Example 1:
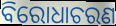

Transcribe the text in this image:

ବିରୋଧାଚରଣ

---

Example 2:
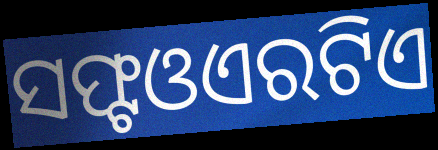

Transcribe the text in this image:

ସଫ୍ଟଓଏରଟିଏ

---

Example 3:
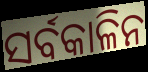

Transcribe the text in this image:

ସର୍ବକାଳିନ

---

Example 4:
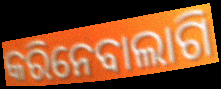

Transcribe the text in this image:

କରିନେବାଲାଗି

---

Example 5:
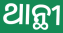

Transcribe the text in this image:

ଥାନ୍ଥୀ